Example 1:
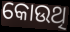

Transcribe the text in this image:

କୋଉଥି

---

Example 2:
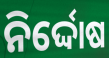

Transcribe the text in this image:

ନିର୍ଦ୍ଦୋଷ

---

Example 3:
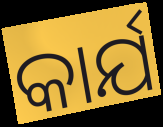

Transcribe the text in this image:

କାର୍ଯ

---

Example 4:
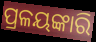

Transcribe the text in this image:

ପ୍ରଳୟଙ୍କାରି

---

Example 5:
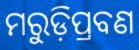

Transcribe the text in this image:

ମରୁଡ଼ିପ୍ରବଣ